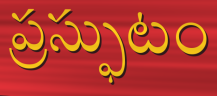
ప్రస్ఫుటం